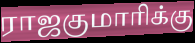
ராஜகுமாரிக்கு